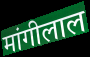
मांगीलाल